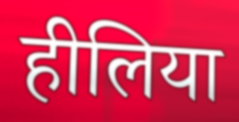
हीलिया